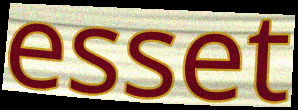
esset